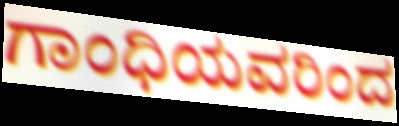
ಗಾಂಧಿಯವರಿಂದ